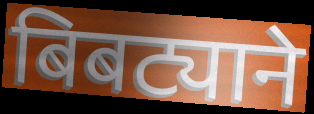
बिबट्याने